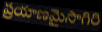
ప్రయాణమైసాగిరి